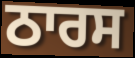
ਠਾਰਸ